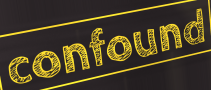
confound